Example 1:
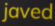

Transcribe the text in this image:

javed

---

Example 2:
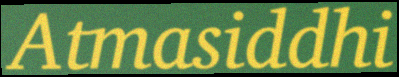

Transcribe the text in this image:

Atmasiddhi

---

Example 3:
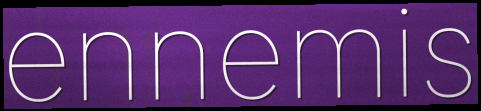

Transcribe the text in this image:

ennemis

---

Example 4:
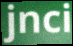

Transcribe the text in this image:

jnci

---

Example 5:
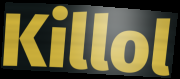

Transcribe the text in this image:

Killol